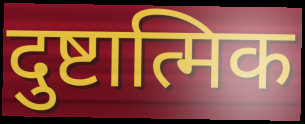
दुष्टात्मिक